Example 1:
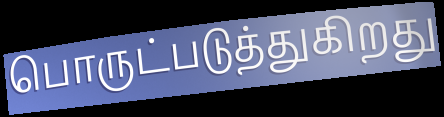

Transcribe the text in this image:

பொருட்படுத்துகிறது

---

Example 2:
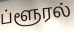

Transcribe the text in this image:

ப்ளூரல்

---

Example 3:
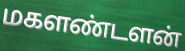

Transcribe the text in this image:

மகளண்டளன்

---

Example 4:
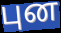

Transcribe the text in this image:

புன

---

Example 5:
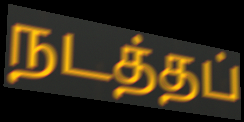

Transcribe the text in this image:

நடத்தப்